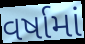
વર્ષામાં